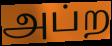
அப்ற